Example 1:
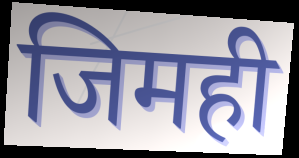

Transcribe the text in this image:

जिमही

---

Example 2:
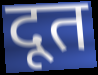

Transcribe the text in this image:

दूत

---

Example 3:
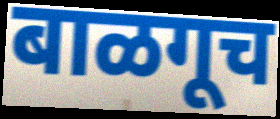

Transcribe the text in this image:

बाळगूच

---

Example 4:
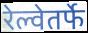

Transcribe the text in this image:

रेल्वेतर्फे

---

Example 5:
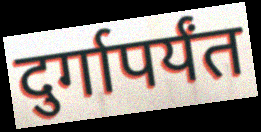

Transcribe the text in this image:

दुर्गापर्यंत